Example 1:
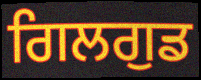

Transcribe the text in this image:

ਗਿਲਗੁਡ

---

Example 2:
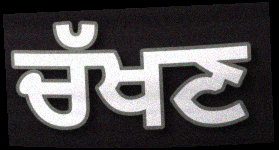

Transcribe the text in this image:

ਚੱਖਣ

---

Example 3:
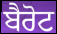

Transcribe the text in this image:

ਬੈਰੋਟ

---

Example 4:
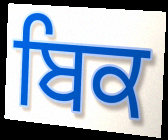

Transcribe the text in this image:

ਬਿਕ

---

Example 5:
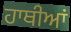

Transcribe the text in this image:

ਹਾਥੀਆਂ